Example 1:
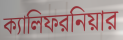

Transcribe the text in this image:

ক্যালিফরনিয়ার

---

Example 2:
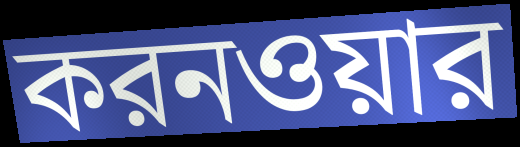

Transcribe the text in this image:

করনওয়ার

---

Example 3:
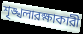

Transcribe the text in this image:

শৃঙ্খলারক্ষাকারী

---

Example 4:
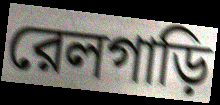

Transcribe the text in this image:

রেলগাড়ি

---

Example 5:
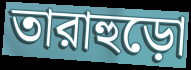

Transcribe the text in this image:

তারাহুড়ো